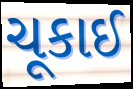
ચૂકાઈ